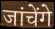
जांचेंगे